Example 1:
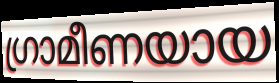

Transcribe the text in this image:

ഗ്രാമീണയായ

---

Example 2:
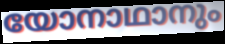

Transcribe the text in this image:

യോനാഥാനും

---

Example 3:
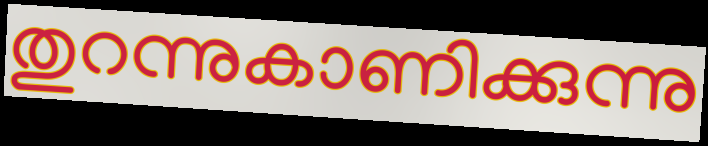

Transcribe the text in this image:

തുറന്നുകാണിക്കുന്നു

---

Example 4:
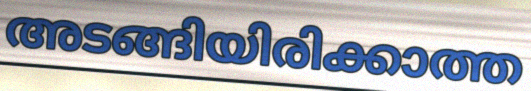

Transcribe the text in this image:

അടങ്ങിയിരിക്കാത്ത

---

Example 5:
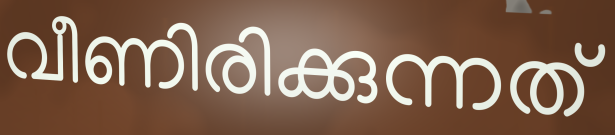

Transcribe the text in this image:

വീണിരിക്കുന്നത്